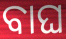
ବାଘ